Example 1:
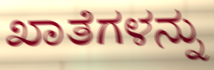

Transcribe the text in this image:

ಖಾತೆಗಳನ್ನು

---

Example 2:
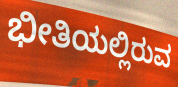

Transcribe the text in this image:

ಭೀತಿಯಲ್ಲಿರುವ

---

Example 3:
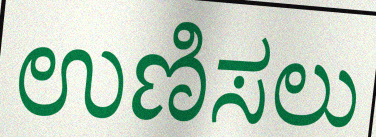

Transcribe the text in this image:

ಉಣಿಸಲು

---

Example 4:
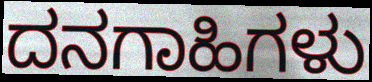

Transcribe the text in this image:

ದನಗಾಹಿಗಳು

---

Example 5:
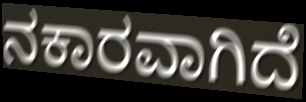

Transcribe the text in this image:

ನಕಾರವಾಗಿದೆ